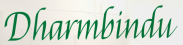
Dharmbindu